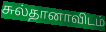
சுல்தானாவிடம்